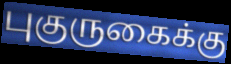
புகுருகைக்கு